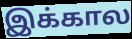
இக்கால